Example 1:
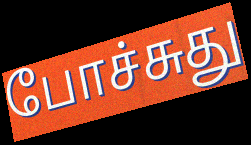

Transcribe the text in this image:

போச்சுது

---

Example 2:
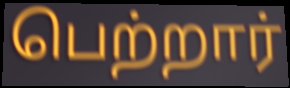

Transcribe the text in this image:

பெற்றார்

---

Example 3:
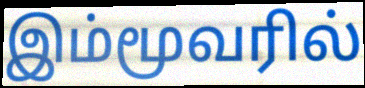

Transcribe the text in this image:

இம்மூவரில்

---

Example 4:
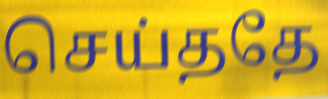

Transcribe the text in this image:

செய்ததே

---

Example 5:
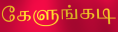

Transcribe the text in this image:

கேளுங்கடி